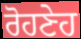
ਰੋਹਣੇਹ